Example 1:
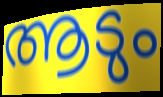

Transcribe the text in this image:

ആടും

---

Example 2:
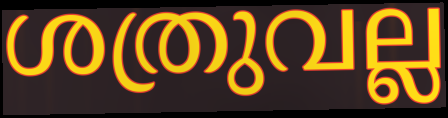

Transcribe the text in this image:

ശത്രുവല്ല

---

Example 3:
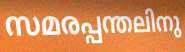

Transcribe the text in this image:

സമരപ്പന്തലിനു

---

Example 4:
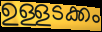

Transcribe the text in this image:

ഉള്ളടക്കം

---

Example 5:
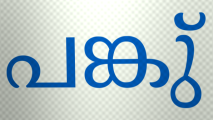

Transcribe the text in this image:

പങ്കു്